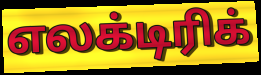
எலக்டிரிக்